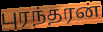
புரந்தரன்